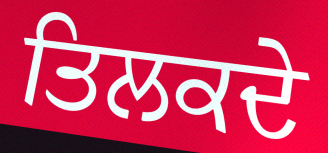
ਤਿਲਕਦੇ